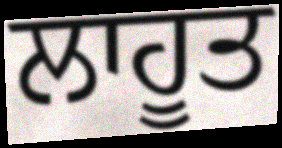
ਲਾਹੂਤ